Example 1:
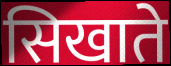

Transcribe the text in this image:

सिखाते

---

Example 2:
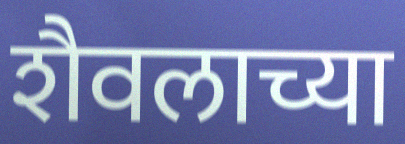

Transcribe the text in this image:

शैवलाच्या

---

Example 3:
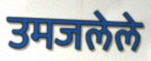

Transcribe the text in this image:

उमजलेले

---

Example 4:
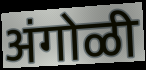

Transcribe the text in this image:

अंगोळी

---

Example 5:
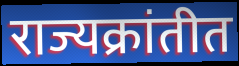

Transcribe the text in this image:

राज्यक्रांतीत